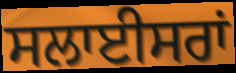
ਸਲਾਈਸਰਾਂ